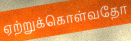
ஏற்றுக்கொள்வதோ